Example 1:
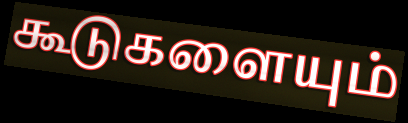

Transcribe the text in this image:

கூடுகளையும்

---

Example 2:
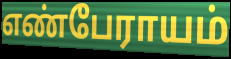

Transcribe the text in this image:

எண்பேராயம்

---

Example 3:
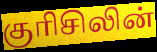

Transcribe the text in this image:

குரிசிலின்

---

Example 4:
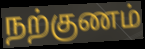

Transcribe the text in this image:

நற்குணம்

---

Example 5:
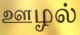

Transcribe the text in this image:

ஊழல்